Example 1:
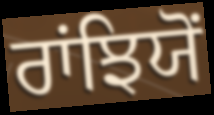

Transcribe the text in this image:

ਰਾਂਝਿਯੋਂ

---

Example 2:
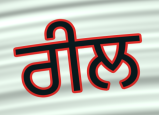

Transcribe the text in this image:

ਰੀਲ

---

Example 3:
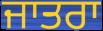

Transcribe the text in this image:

ਜਾਤਰਾ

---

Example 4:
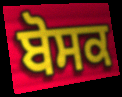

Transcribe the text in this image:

ਬੋਸਕ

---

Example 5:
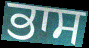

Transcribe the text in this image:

ਭਾਸ